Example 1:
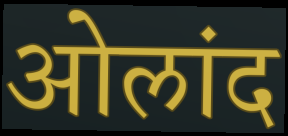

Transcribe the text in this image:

ओलांद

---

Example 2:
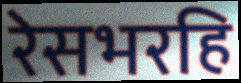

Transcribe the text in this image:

रेसभरहि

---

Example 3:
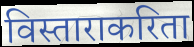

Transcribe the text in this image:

विस्ताराकरिता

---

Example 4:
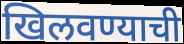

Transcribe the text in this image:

खिलवण्याची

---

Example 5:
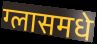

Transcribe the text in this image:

ग्लासमधे